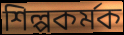
শিল্পকৰ্মক